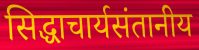
सिद्धाचार्यसंतानीय